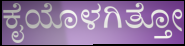
ಕೈಯೊಳಗಿತ್ತೋ